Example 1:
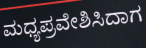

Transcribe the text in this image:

ಮಧ್ಯಪ್ರವೇಶಿಸಿದಾಗ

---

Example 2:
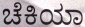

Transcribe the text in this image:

ಚೆಕಿಯಾ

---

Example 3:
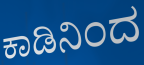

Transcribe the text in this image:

ಕಾಡಿನಿಂದ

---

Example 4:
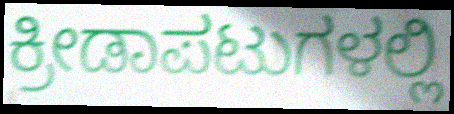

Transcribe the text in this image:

ಕ್ರೀಡಾಪಟುಗಳಲ್ಲಿ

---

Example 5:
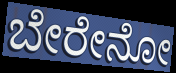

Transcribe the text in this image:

ಬೇರೇನೋ